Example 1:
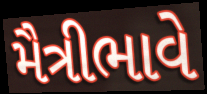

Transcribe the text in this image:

મૈત્રીભાવે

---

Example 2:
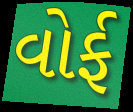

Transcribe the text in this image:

વોર્ફ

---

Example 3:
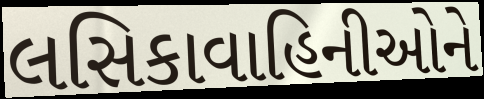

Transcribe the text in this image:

લસિકાવાહિનીઓને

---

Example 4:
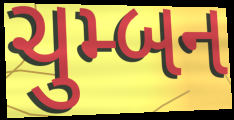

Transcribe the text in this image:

ચુમ્બન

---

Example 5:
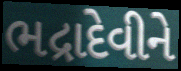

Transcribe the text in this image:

ભદ્રાદેવીને